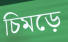
চিমড়ে